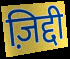
ज़िद्दी